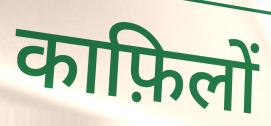
काफ़िलों